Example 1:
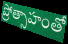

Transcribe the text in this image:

ప్రోత్సాహంతో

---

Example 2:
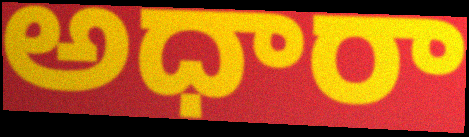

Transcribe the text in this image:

అధారా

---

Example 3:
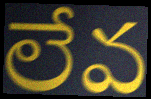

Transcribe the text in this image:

లేవ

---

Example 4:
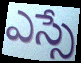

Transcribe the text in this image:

ఎస్సే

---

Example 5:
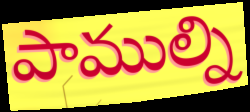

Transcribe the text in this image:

పాముల్ని